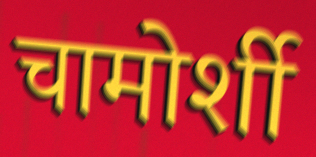
चामोर्शी